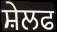
ਸ਼ੇਲਫ